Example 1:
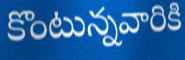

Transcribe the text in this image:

కొంటున్నవారికి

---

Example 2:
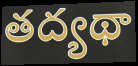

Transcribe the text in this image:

తద్యథా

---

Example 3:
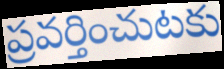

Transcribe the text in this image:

ప్రవర్తించుటకు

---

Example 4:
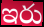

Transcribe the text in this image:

ఇరు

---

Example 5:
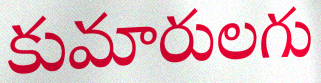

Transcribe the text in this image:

కుమారులగు